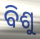
ବିଶୁ